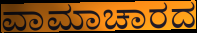
ವಾಮಾಚಾರದ